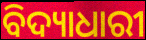
ବିଦ୍ୟାଧାରୀ